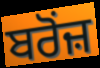
ਬਰੋਂਜ਼